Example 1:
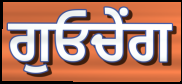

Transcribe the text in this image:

ਗੁਓਚੇਂਗ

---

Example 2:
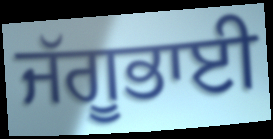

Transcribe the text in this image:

ਜੱਗੂਭਾਈ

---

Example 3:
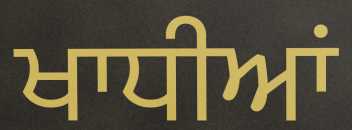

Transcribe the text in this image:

ਖਾਧੀਆਂ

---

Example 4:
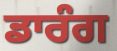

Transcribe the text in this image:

ਡਾਰੰਗ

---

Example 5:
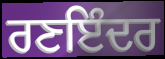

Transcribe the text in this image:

ਰਣਇੰਦਰ